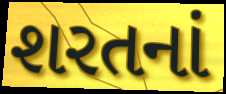
શરતનાં